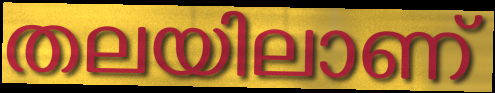
തലയിലാണ്